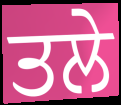
ਤਲੇ